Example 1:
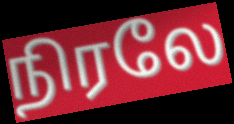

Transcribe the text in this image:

நிரலே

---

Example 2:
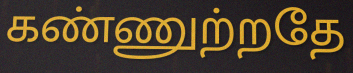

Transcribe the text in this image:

கண்ணுற்றதே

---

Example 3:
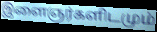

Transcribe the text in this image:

இளைஞர்களிடமும்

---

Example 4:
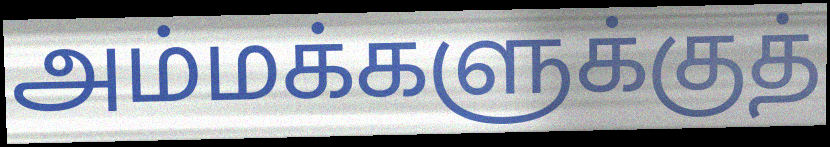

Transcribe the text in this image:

அம்மக்களுக்குத்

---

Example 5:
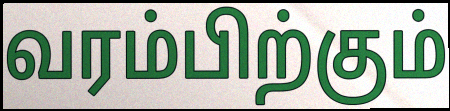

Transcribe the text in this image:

வரம்பிற்கும்